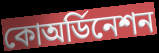
কোঅর্ডিনেশন